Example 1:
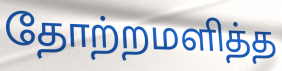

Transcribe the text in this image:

தோற்றமளித்த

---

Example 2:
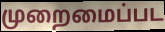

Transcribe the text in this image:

முறைமைப்பட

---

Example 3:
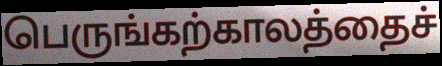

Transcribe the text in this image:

பெருங்கற்காலத்தைச்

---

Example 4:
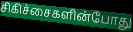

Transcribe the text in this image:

சிகிச்சைகளின்போது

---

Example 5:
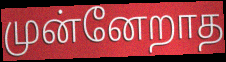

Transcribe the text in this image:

முன்னேறாத